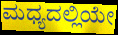
ಮಧ್ಯದಲ್ಲಿಯೇ